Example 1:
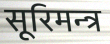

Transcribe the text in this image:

सूरिमन्त्र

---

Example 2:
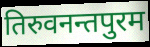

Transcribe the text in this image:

तिरुवनन्तपुरम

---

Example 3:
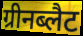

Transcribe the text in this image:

ग्रीनब्लैट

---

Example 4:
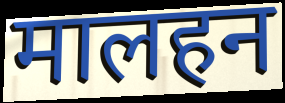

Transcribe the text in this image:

मालहन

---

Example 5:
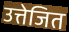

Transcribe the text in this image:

उत्तेजित